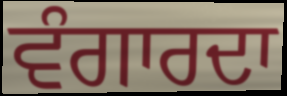
ਵੰਗਾਰਦਾ